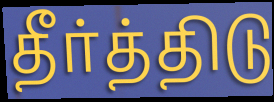
தீர்த்திடு